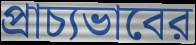
প্রাচ্যভাবের